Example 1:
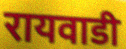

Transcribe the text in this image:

रायवाडी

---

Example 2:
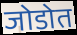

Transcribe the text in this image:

जोडोत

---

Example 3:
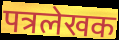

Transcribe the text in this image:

पत्रलेखक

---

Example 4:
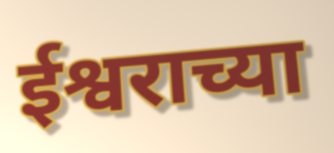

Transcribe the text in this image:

ईश्वराच्या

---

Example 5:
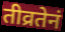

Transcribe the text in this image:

तीव्रतेनं